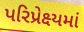
પરિપ્રેક્ષ્યમાં